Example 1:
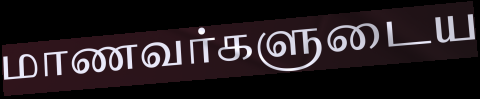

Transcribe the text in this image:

மாணவர்களுடைய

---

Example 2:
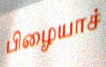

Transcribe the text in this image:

பிழையாச்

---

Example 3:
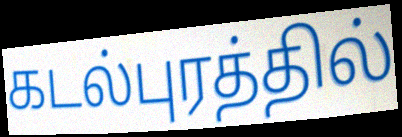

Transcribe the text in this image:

கடல்புரத்தில்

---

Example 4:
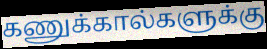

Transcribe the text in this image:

கணுக்கால்களுக்கு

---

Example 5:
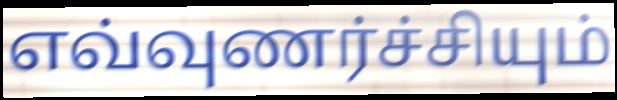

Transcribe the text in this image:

எவ்வுணர்ச்சியும்